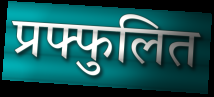
प्रफ्फुलित